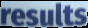
results